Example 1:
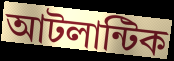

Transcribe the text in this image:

আটলান্টিক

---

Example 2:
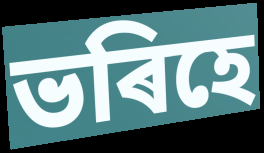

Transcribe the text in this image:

ভৰিহে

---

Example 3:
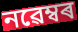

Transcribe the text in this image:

নৱেম্বৰ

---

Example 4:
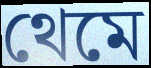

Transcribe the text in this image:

থেমে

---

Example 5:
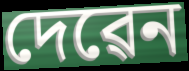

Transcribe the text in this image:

দেৱেন